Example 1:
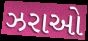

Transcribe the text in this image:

ઝરાઓ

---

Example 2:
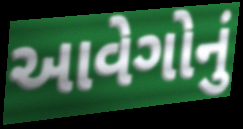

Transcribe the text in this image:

આવેગોનું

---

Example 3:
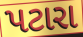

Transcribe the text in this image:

પટારા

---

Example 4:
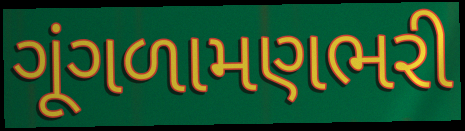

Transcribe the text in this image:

ગૂંગળામણભરી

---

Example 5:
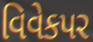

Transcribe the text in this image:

વિવેકપર